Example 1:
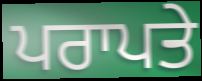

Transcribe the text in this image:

ਪਰਾਪਤੇ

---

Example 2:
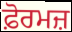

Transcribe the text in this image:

ਫ਼ੋਰਮਜ਼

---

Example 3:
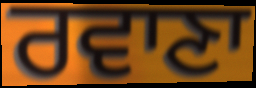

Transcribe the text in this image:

ਰਵਾਣਾ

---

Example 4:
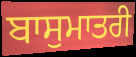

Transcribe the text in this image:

ਬਾਸੁਮਾਤਰੀ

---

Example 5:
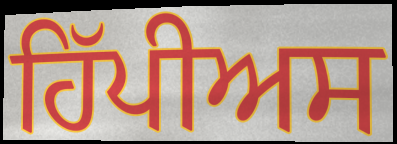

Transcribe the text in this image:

ਹਿੱਪੀਅਸ